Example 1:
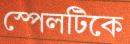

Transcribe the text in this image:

স্পেলটিকে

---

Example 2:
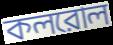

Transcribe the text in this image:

কলরোল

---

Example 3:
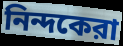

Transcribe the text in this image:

নিন্দকেরা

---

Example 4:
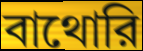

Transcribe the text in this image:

বাথোরি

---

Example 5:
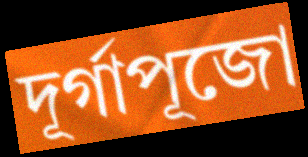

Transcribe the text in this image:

দূর্গাপূজো